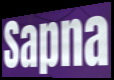
Sapna